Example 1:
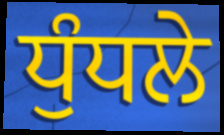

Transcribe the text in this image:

ਧੁੰਧਲੇ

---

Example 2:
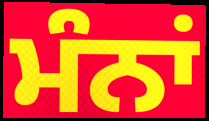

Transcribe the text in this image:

ਮੰਨਾਂ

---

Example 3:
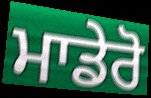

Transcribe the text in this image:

ਮਾਡੇਰੋ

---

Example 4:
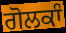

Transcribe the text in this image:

ਗੋਲਕਾੰ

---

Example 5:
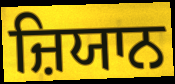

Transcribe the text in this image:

ਜ਼ਿਯਾਨ